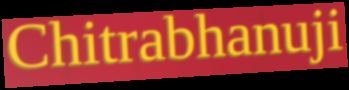
Chitrabhanuji